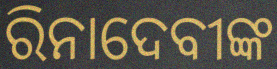
ରିନାଦେବୀଙ୍କ